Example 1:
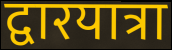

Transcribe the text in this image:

द्वारयात्रा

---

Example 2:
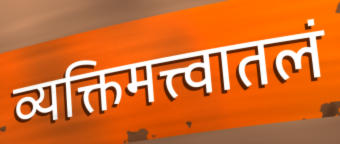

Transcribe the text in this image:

व्यक्तिमत्त्वातलं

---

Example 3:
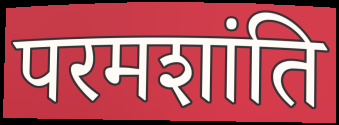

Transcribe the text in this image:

परमशांति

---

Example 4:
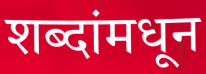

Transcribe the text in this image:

शब्दांमधून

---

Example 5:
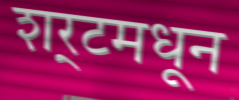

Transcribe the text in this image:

शर्टमधून